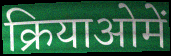
क्रियाओमें